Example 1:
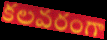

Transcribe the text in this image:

కలవరంగా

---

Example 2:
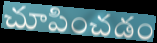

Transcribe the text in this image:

చూపించడం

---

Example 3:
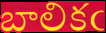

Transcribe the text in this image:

బాలికఁ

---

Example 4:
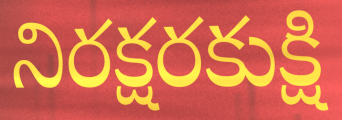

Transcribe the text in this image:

నిరక్షరకుక్షి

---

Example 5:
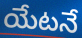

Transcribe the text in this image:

యేటనే